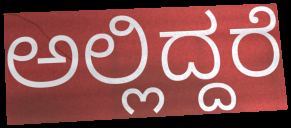
ಅಲ್ಲಿದ್ದರೆ